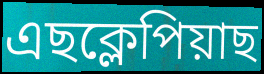
এছক্লেপিয়াছ